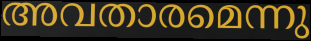
അവതാരമെന്നു